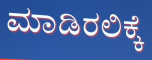
ಮಾಡಿರಲಿಕ್ಕೆ